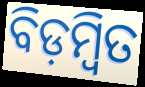
ବିଡ଼ମ୍ଵିତ